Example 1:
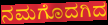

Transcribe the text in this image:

ನಮಗೊದಗಿದ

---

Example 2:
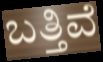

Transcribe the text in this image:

ಬತ್ತಿವೆ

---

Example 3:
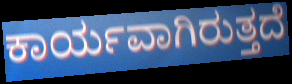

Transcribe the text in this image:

ಕಾರ್ಯವಾಗಿರುತ್ತದೆ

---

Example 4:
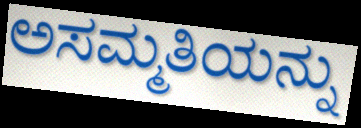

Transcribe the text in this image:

ಅಸಮ್ಮತಿಯನ್ನು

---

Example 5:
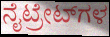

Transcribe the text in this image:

ನೈಟ್ರೇಟ್‌ಗಳ